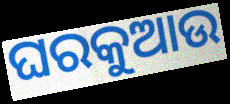
ଘରକୁଆଉ